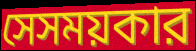
সেসময়কার